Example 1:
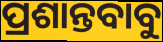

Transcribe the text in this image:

ପ୍ରଶାନ୍ତବାବୁ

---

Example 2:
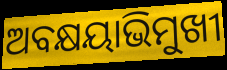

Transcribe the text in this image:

ଅବକ୍ଷୟାଭିମୁଖୀ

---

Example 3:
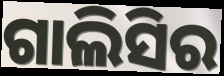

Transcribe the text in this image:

ଗାଲିସିର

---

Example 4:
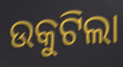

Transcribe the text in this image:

ଉକୁଟିଲା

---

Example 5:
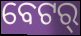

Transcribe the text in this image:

ବେଟର୍